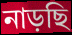
নাড়ছি